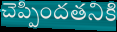
చెప్పిందతనికి